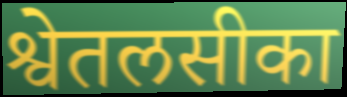
श्वेतलसीका